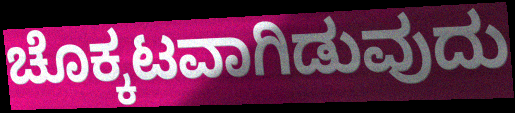
ಚೊಕ್ಕಟವಾಗಿಡುವುದು